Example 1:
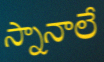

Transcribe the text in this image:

స్నానాలే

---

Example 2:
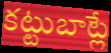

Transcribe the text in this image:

కట్టుబాట్లే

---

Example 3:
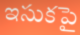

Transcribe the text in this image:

ఇసుకపై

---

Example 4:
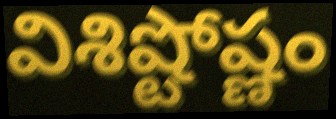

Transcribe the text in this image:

విశిష్టోష్ణం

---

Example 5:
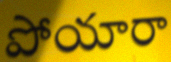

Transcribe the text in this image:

పోయారా